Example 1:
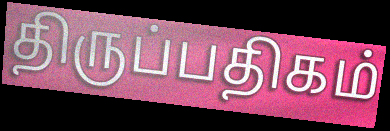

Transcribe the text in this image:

திருப்பதிகம்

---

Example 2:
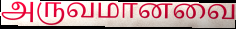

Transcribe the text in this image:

அருவமானவை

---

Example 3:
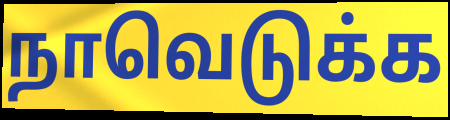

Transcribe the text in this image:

நாவெடுக்க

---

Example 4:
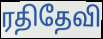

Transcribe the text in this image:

ரதிதேவி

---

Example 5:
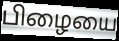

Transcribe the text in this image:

பிழையை